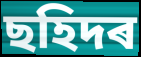
ছহিদৰ